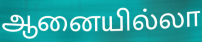
ஆனையில்லா